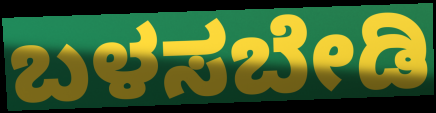
ಬಳಸಬೇಡಿ